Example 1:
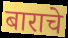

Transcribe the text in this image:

बाराचे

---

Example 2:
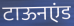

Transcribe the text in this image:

टाऊनएंड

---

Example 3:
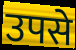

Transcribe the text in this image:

उपसे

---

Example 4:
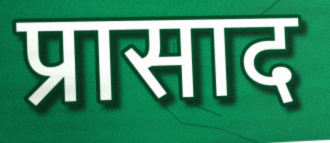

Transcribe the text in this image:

प्रासाद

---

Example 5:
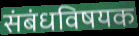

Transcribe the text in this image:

संबंधविषयक